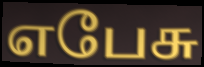
எபேசு